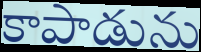
కాపాడును